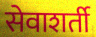
सेवाशर्ती